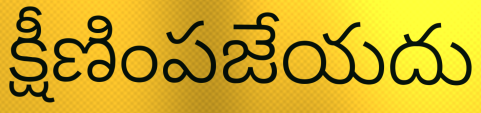
క్షీణింపజేయదు